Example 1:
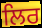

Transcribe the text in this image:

ਲਿਰ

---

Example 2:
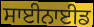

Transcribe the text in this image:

ਸਾਈਨਾਈਡ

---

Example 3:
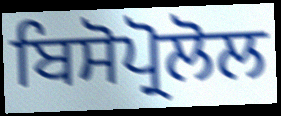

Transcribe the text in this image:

ਬਿਸੋਪ੍ਰੋਲੋਲ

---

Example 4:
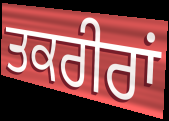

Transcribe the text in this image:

ਤਕਰੀਰਾਂ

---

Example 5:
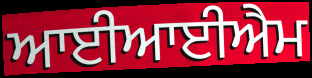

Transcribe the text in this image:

ਆਈਆਈਐਮ